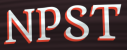
NPST